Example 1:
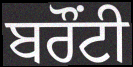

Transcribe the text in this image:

ਬਰੌਂਟੀ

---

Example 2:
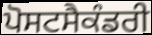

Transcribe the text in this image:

ਪੋਸਟਸੈਕੰਡਰੀ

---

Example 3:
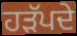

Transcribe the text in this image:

ਹੜੱਪਦੇ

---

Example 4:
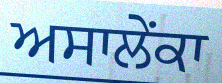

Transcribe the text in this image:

ਅਸਾਲੇਂਕਾ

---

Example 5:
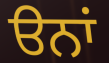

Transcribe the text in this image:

ੳਨਾਂ